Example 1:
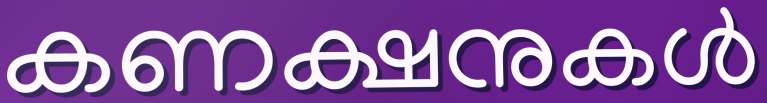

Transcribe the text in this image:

കണക്ഷനുകൾ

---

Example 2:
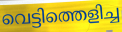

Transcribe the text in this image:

വെട്ടിത്തെളിച്ച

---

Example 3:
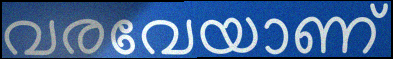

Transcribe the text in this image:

വരവേയാണ്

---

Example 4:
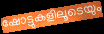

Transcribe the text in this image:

ഷോട്ടുകളിലൂടെയും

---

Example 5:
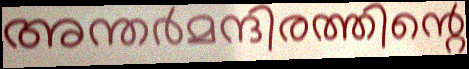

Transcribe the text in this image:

അന്തർമന്ദിരത്തിന്റെ